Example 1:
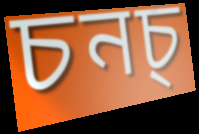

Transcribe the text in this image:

চনচ্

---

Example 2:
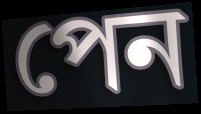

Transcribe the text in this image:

পেন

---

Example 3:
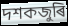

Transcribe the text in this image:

দশকজুৰি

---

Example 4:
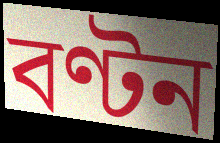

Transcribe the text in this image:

বণ্টন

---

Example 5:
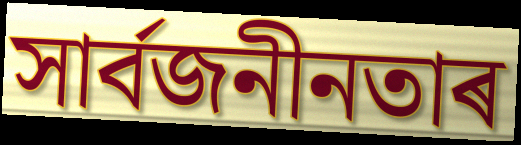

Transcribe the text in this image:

সাৰ্বজনীনতাৰ